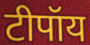
टीपॉय